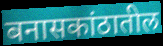
बनासकांठातील